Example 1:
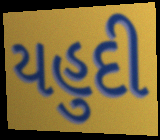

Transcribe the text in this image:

યહુદી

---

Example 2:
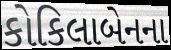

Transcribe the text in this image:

કોકિલાબેનના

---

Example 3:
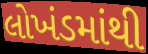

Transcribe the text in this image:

લોખંડમાંથી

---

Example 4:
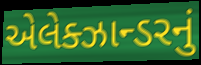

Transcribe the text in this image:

એલેક્ઝાન્ડરનું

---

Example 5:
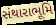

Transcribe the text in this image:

સંથારાભૂમિ